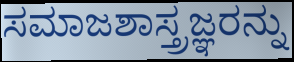
ಸಮಾಜಶಾಸ್ತ್ರಜ್ಞರನ್ನು